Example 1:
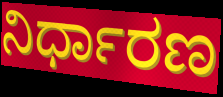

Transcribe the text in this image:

ನಿರ್ಧಾರಣ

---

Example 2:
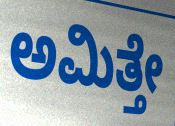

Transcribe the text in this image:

ಅಮಿತ್ತೇ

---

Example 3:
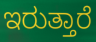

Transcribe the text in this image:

ಇರುತ್ತಾರೆ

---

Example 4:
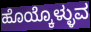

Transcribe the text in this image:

ಹೊಯ್ಕೊಳ್ಳುವ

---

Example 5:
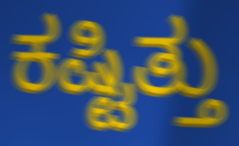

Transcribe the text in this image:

ಕಷ್ಟಿತ್ತು